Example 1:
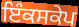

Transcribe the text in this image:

ਇੰਕਸਕੇਪ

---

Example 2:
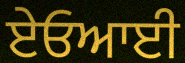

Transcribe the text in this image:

ਏਓਆਈ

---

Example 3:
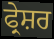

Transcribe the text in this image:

ਫ੍ਰੇਸ਼ਰ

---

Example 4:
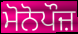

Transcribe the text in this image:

ਮੋਨੋਪੌਜ਼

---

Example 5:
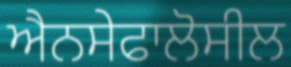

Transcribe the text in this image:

ਐਨਸੇਫਾਲੋਸੀਲ